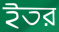
ইতর